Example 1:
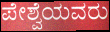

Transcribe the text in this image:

ಪೇಶ್ವೆಯವರು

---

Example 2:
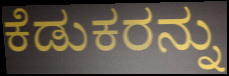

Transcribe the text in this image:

ಕೆಡುಕರನ್ನು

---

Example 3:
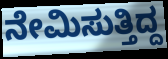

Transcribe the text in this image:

ನೇಮಿಸುತ್ತಿದ್ದ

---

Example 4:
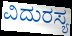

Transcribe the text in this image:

ವಿದುರಸ್ಯ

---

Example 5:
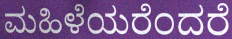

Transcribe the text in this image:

ಮಹಿಳೆಯರೆಂದರೆ